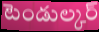
టెండుల్కర్